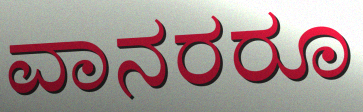
ವಾನರರೂ